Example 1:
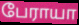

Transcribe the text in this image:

பேராயா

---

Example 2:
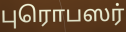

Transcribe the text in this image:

புரொபஸர்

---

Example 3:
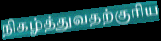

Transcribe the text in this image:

நிகழ்த்துவதற்குரிய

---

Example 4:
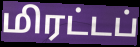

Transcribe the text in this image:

மிரட்டப்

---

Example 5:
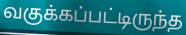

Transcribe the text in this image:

வகுக்கப்பட்டிருந்த